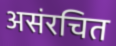
असंरचित